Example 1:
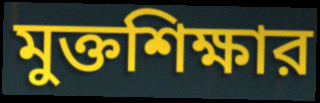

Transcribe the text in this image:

মুক্তশিক্ষার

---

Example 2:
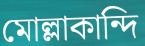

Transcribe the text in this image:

মোল্লাকান্দি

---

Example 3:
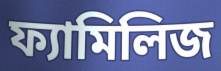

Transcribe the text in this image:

ফ্যামিলিজ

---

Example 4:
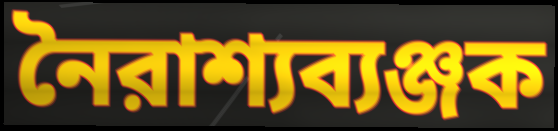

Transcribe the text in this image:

নৈরাশ্যব্যঞ্জক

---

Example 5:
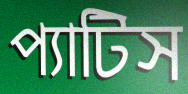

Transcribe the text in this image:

প্যাটিস